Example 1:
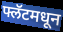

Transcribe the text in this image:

फ्लॅटमधून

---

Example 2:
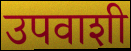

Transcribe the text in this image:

उपवाशी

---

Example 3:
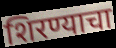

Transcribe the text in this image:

शिरण्याचा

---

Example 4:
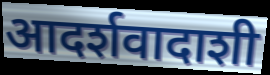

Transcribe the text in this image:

आदर्शवादाशी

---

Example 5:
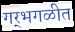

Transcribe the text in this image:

गर्भगळीत